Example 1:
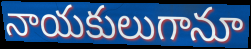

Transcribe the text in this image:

నాయకులుగానూ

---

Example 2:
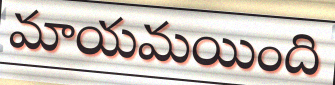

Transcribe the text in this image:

మాయమయింది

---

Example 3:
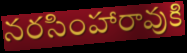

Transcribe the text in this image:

నరసింహారావుకి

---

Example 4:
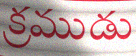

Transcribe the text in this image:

క్రముడు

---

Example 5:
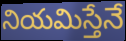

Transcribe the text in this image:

నియమిస్తేనే